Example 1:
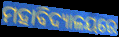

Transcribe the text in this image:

ମହାବିଦ୍ୟାଳୟରେ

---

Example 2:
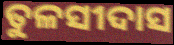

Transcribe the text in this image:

ତୁଳସୀଦାସ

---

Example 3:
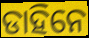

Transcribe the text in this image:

ଡାହିନେ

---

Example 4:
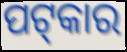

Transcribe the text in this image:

ପଟ୍‌କାର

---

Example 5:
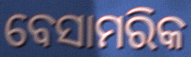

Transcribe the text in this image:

ବେସାମରିକ